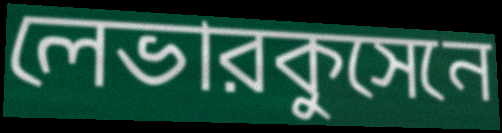
লেভারকুসেনে